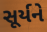
સૂર્યને